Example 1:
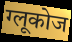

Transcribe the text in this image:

ग्लूकोज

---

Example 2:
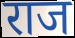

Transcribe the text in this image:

राज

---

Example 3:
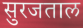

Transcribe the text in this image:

सुरजताल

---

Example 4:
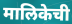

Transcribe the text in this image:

मालिकेची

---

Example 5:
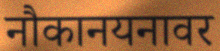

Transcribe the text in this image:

नौकानयनावर